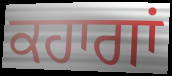
ਕਹਾਗਾਂ